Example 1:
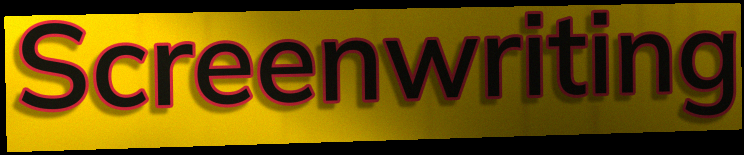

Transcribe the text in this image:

Screenwriting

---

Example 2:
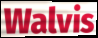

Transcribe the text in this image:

Walvis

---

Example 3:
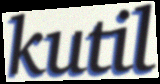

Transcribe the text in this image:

kutil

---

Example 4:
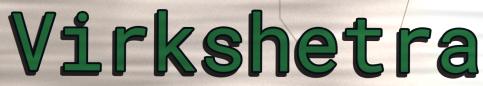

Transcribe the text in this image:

Virkshetra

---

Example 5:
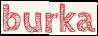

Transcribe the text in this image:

burka